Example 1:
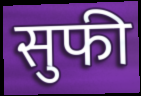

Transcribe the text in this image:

सुफी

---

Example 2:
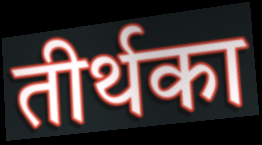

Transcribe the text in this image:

तीर्थका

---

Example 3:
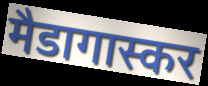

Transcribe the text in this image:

मैडागास्कर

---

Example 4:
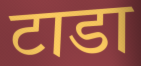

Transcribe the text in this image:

टाडा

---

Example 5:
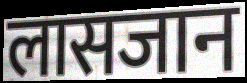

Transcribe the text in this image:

लासजान